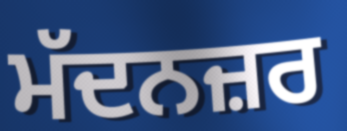
ਮੱਦਨਜ਼ਰ